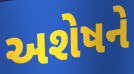
અશેષને